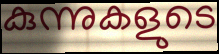
കുന്നുകളുടെ